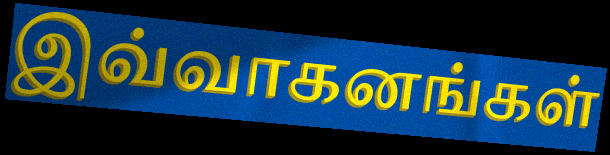
இவ்வாகனங்கள்